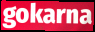
gokarna